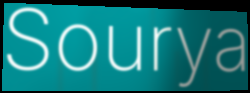
Sourya